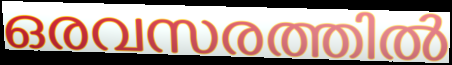
ഒരവസരത്തിൽ